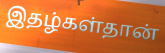
இதழ்கள்தான்